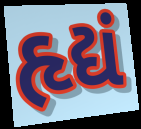
હૃદ્યં